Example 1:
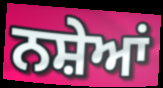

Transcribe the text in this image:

ਨਸ਼ੇਆਂ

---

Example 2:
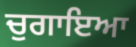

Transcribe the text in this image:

ਚੁਗਾਇਆ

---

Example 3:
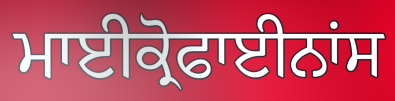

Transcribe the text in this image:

ਮਾਈਕ੍ਰੋਫਾਈਨਾਂਸ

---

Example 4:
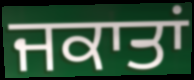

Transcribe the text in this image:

ਜਕਾਤਾਂ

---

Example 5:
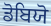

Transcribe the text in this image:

ਡੋਬਿਯੋ